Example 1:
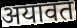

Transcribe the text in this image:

अयावत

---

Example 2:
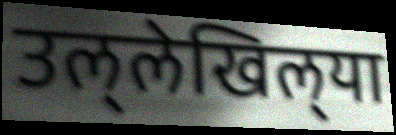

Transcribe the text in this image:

उल्लेखिल्या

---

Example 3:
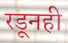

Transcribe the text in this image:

रडूनही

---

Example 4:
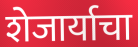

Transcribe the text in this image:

शेजार्याचा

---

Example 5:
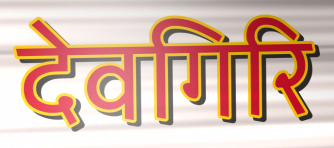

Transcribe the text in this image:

देवगिरि